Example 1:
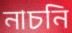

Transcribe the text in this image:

নাচনি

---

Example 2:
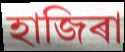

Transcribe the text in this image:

হাজিৰা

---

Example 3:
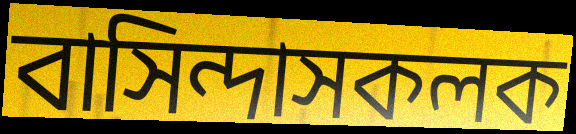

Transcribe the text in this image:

বাসিন্দাসকলক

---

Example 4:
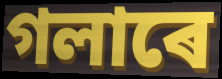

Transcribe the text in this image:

গলাৰে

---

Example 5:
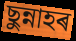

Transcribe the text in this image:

ছুন্নাহৰ